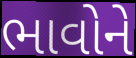
ભાવોને